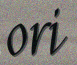
ori